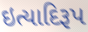
ઇત્યાદિરૂપ